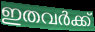
ഇതവർക്ക്